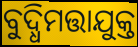
ବୁଦ୍ଧିମତ୍ତାଯୁକ୍ତ